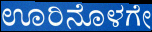
ಊರಿನೊಳಗೇ